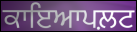
ਕਾਇਆਪਲ਼ਟ